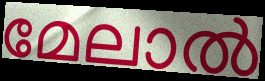
മേലാൽ